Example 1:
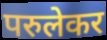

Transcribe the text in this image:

परुलेकर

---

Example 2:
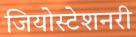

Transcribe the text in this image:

जियोस्टेशनरी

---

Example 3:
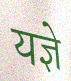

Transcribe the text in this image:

यज्ञे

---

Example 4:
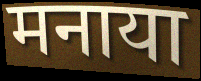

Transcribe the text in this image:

मनाया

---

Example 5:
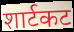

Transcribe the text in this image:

शार्टकट